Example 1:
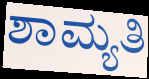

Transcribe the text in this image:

ಶಾಮ್ಯತಿ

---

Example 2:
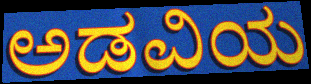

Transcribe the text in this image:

ಅಡವಿಯ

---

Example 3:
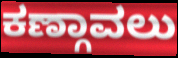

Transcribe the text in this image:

ಕಣ್ಗಾವಲು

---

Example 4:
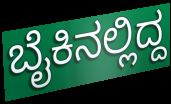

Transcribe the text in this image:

ಬೈಕಿನಲ್ಲಿದ್ದ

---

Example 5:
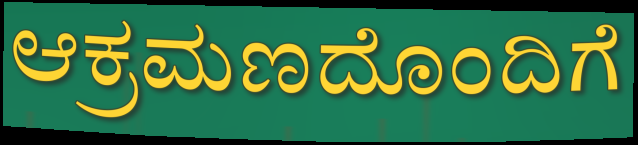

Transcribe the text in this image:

ಆಕ್ರಮಣದೊಂದಿಗೆ